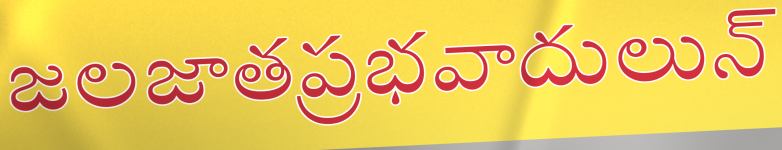
జలజాతప్రభవాదులున్